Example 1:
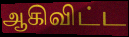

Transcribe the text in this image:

ஆகிவிட்ட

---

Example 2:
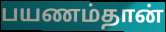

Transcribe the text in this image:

பயணம்தான்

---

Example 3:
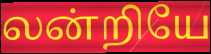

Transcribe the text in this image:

லன்றியே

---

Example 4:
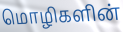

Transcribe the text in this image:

மொழிகளின்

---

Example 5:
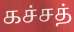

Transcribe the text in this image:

கச்சத்